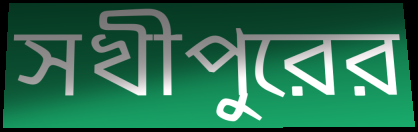
সখীপুরের